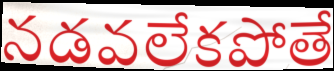
నడవలేకపోతే